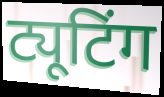
ट्यूटिंग